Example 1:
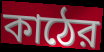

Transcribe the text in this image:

কাঠের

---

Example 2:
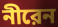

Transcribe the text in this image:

নীরেন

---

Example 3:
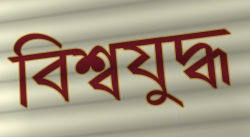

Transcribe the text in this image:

বিশ্বযুদ্ধ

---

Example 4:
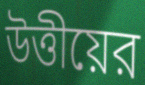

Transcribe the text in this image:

উত্তীয়ের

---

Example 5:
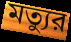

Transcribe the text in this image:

মত্যুর